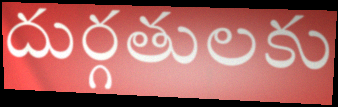
దుర్గతులకు